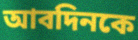
আবদিনকে